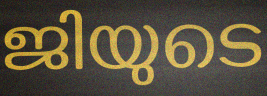
ജിയുടെ